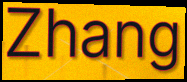
Zhang